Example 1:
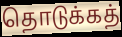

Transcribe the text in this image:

தொடுக்கத்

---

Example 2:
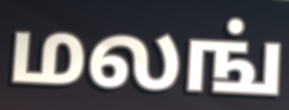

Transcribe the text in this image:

மலங்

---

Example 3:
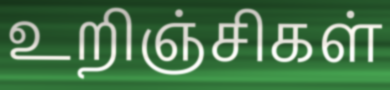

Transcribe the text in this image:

உறிஞ்சிகள்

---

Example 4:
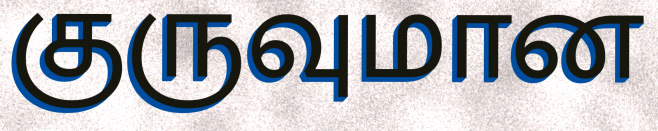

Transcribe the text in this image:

குருவுமான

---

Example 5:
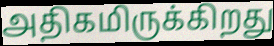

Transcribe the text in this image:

அதிகமிருக்கிறது